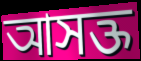
আসক্ত